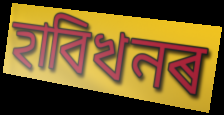
হাবিখনৰ